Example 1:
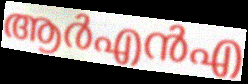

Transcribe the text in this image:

ആർഎൻഎ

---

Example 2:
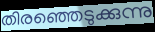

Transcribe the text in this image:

തിരഞ്ഞെടുക്കുന്നു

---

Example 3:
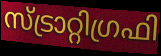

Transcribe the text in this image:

സ്ട്രാറ്റിഗ്രഫി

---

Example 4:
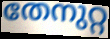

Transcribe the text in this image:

തേനുറ്റ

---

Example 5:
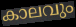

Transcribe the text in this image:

കാലവും